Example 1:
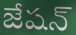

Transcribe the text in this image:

జేషన్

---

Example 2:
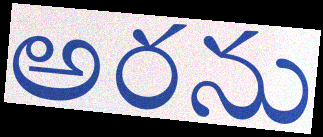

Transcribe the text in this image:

అరను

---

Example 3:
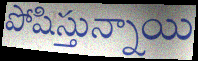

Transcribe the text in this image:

పోషిస్తున్నాయి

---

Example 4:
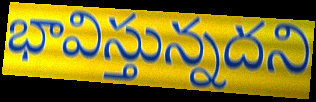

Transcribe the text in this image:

భావిస్తున్నదని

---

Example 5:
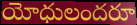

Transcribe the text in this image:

యోధులందరూ